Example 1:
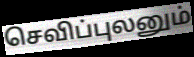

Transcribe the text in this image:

செவிப்புலனும்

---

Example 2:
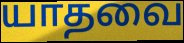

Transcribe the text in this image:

யாதவை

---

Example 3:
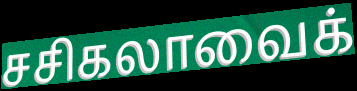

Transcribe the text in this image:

சசிகலாவைக்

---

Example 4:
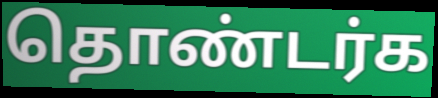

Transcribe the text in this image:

தொண்டர்க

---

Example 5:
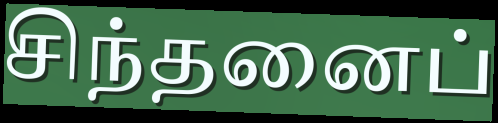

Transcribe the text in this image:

சிந்தனைப்